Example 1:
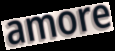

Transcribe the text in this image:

amore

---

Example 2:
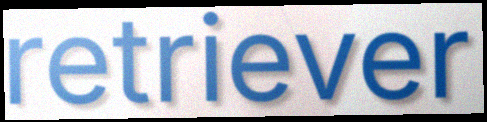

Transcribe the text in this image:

retriever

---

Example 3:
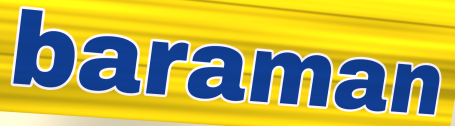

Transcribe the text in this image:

baraman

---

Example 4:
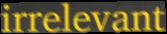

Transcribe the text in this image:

irrelevant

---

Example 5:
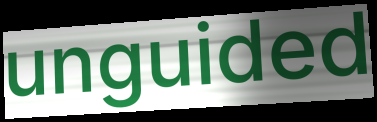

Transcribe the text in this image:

unguided